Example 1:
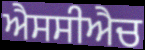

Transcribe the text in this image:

ਐਸਸੀਐਚ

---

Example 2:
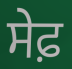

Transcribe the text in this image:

ਸੇਫ਼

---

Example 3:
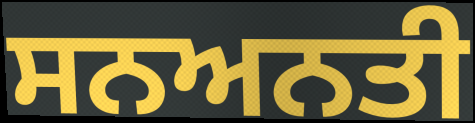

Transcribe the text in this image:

ਸਨਅਨਤੀ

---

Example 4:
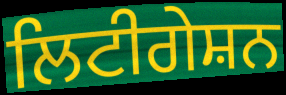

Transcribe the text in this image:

ਲਿਟੀਗੇਸ਼ਨ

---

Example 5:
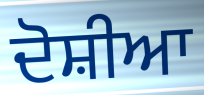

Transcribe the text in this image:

ਦੋਸ਼ੀਆ